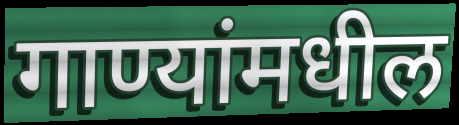
गाण्यांमधील